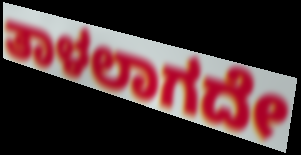
ತಾಳಲಾಗದೇ